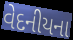
વેદનીયના